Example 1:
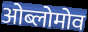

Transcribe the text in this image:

ओब्लोमोव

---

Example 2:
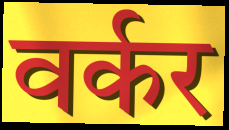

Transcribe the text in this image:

वर्कर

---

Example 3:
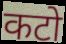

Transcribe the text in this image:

कटो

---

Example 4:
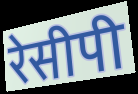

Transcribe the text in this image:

रेसीपी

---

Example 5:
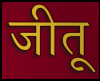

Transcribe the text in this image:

जीतू